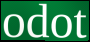
odot